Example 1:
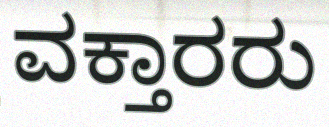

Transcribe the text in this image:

ವಕ್ತಾರರು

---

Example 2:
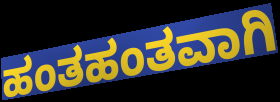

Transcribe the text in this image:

ಹಂತಹಂತವಾಗಿ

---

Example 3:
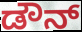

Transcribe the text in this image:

ಡೌನ್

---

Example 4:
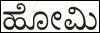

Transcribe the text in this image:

ಹೋಮಿ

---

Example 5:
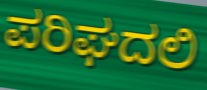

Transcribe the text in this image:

ಪರಿಘದಲಿ